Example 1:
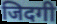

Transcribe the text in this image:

जिदगी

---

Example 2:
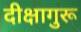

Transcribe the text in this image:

दीक्षागुरू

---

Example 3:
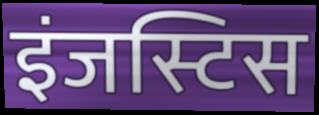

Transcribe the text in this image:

इंजस्टिस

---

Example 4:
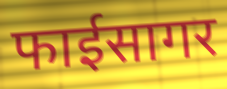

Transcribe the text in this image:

फाईसागर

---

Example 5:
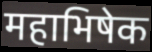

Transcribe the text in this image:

महाभिषेक